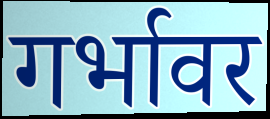
गर्भावर